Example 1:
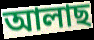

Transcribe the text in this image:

আলাছ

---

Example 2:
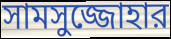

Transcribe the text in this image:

সামসুজ্জোহার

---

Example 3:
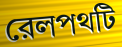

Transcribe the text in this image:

রেলপথটি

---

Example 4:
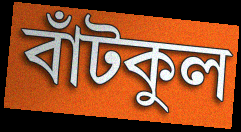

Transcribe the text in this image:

বাঁটকুল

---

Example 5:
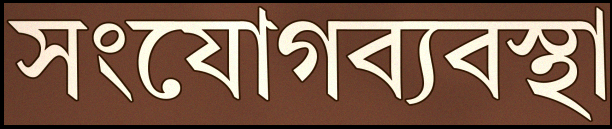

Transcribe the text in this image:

সংযোগব্যবস্থা